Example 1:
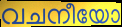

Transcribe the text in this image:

വചനീയോ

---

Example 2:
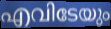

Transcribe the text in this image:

എവിടേയും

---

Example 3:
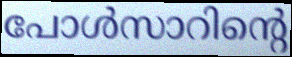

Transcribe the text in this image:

പോൾസാറിന്റെ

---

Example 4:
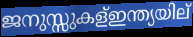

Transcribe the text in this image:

ജനുസ്സുകള്ഇന്ത്യയില്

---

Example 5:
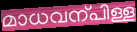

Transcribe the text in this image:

മാധവന്പിള്ള